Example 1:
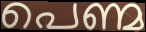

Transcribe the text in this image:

പെണ്മ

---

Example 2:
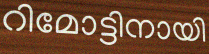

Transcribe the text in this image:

റിമോട്ടിനായി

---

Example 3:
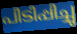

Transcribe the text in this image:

പിടിപ്പിച്ചു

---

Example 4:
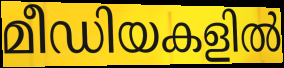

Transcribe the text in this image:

മീഡിയകളിൽ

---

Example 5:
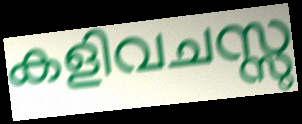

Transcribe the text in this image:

കളിവചസ്സു